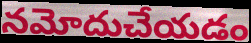
నమోదుచేయడం